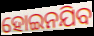
ହୋଇନଯିବ